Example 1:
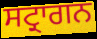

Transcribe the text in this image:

ਸਟ੍ਰਾਗਨ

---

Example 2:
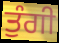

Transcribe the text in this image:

ਤੁੰਗੀ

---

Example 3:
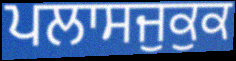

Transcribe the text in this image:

ਪਲਾਸਜੁਕੁਕ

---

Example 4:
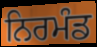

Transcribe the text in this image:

ਨਿਰਮੰਡ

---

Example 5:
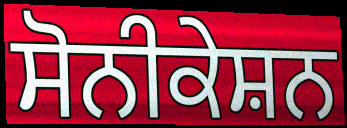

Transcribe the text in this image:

ਸੋਨੀਕੇਸ਼ਨ